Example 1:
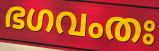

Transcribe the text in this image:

ഭഗവംതഃ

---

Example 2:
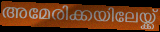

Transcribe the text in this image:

അമേരിക്കയിലേയ്ക്ക്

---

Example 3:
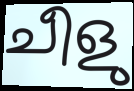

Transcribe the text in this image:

ചീളു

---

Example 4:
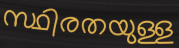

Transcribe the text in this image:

സ്ഥിരതയുള്ള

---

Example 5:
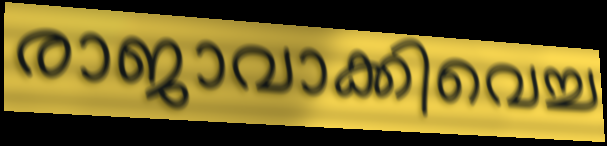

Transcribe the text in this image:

രാജാവാക്കിവെച്ച